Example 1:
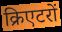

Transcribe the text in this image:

क्रिएटरों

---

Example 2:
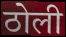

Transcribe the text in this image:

ठोली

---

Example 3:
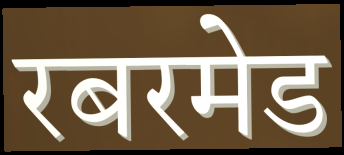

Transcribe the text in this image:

रबरमेड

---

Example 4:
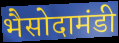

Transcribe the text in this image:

भैसोदामंडी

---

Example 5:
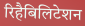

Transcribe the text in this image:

रिहैबिलिटेशन